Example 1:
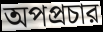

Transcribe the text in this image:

অপপ্রচার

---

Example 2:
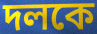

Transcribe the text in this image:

দলকে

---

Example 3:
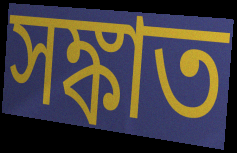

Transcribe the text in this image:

সঙ্কাত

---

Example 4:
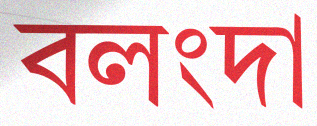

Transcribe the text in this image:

বলংদা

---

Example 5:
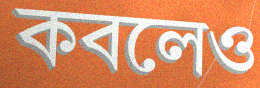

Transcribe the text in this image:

কবলেও